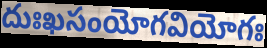
దుఃఖసంయోగవియోగః